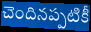
చెందినప్పటికీ